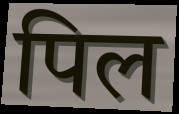
पिल